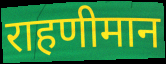
राहणीमान